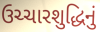
ઉચ્ચારશુદ્ધિનું